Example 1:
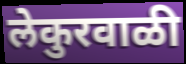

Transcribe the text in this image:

लेकुरवाळी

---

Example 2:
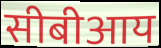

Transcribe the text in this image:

सीबीआय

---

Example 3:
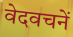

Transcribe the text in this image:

वेदवचनें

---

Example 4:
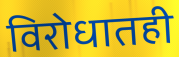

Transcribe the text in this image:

विरोधातही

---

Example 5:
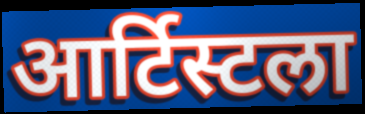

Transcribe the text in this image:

आर्टिस्टला